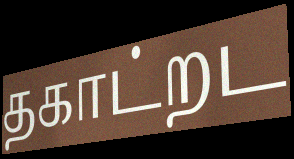
தகாட்றட